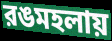
রঙমহলায়